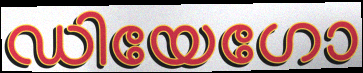
ഡിയേഗോ